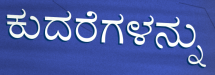
ಕುದರೆಗಳನ್ನು